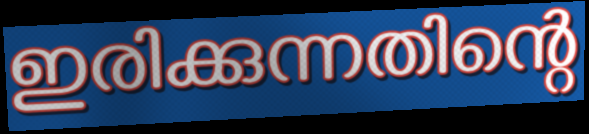
ഇരിക്കുന്നതിന്റെ